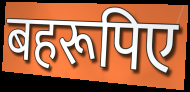
बहरूपिए